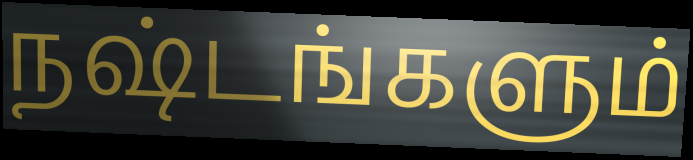
நஷ்டங்களும்